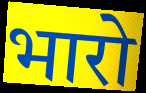
भारो